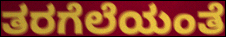
ತರಗೆಲೆಯಂತೆ